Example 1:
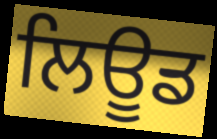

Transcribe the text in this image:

ਲਿਊਡ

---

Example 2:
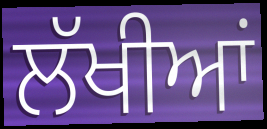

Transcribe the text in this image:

ਲੱਖੀਆਂ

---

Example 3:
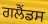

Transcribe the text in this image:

ਗਲੈਂਡਸ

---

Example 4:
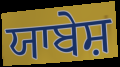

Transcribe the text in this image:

ਯਾਬੇਸ਼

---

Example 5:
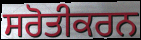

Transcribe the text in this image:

ਸਰੋਤੀਕਰਨ